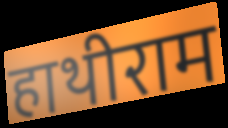
हाथीराम